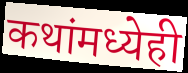
कथांमध्येही